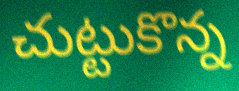
చుట్టుకొన్న